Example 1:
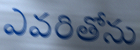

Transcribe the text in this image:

ఎవరితోను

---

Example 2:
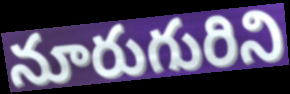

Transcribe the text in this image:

నూరుగురిని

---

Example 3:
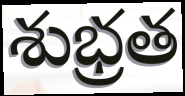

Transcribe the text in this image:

శుభ్రత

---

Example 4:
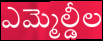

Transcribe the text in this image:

ఎమ్మెల్డీల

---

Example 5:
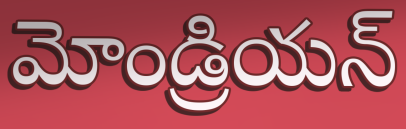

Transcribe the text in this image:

మోండ్రియన్